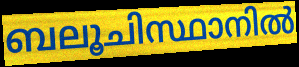
ബലൂചിസ്ഥാനിൽ